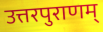
उत्तरपुराणम्